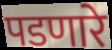
पडणारे